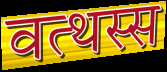
वत्थस्स